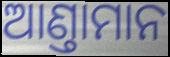
ଆଣ୍ତାମାନ